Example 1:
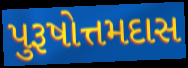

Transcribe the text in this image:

પુરૂષોત્તમદાસ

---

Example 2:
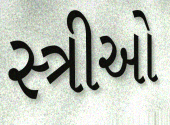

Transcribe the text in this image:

સ્‍ત્રીઓ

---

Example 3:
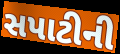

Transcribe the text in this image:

સપાટીની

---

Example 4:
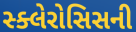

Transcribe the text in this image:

સ્ક્લેરોસિસની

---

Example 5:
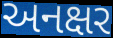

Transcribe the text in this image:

અનક્ષર